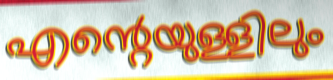
എന്റെയുള്ളിലും